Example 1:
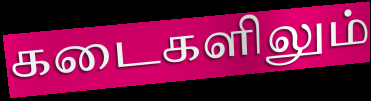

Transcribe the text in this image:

கடைகளிலும்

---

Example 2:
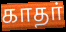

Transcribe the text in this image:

காதர்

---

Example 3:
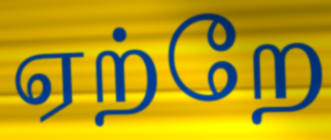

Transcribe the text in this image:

ஏற்றே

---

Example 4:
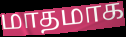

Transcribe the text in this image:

மாதமாக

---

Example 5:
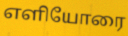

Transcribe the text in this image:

எளியோரை